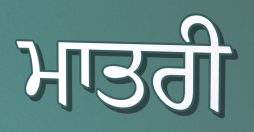
ਮਾਤਰੀ